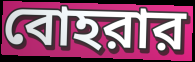
বোহরার